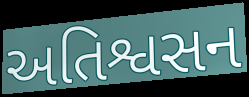
અતિશ્વસન